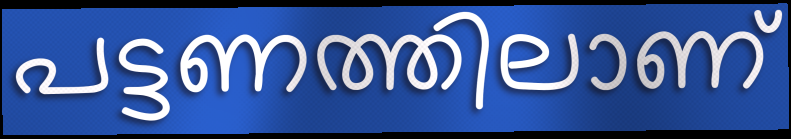
പട്ടണത്തിലാണ്